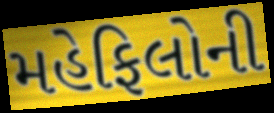
મહેફિલોની